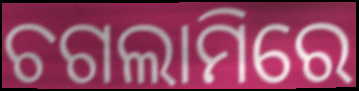
ଚଗଲାମିରେ